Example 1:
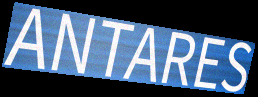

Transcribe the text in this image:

ANTARES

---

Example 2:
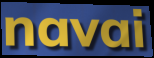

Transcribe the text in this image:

navai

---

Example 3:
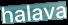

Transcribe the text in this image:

halava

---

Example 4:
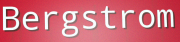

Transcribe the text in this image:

Bergstrom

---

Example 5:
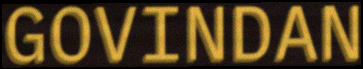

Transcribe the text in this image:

GOVINDAN